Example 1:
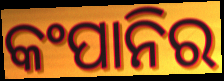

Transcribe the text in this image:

କଂପାନିର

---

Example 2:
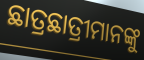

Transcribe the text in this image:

ଛାତ୍ରଛାତ୍ରୀମାନଙ୍କୁ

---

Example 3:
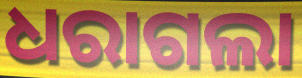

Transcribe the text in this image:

ଧରାଗଲା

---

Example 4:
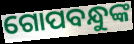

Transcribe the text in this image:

ଗୋପବନ୍ଧୁଙ୍କ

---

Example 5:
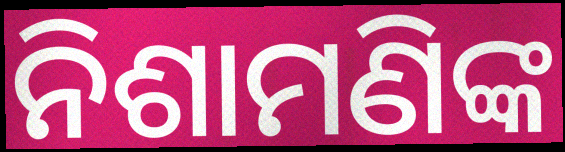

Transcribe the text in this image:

ନିଶାମଣିଙ୍କ